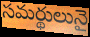
సమర్థులునై